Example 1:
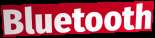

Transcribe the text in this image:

Bluetooth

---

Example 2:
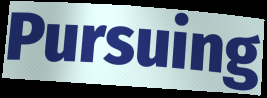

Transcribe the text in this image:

Pursuing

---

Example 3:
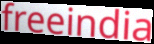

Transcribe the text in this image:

freeindia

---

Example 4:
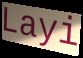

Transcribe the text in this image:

Layi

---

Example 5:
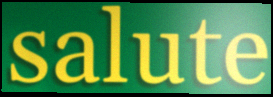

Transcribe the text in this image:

salute